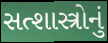
સત્શાસ્ત્રોનું